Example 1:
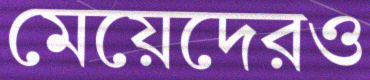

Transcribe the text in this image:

মেয়েদেরও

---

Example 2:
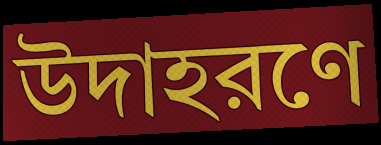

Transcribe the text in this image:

উদাহরণে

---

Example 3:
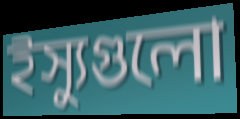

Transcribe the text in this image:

ইস্যুগুলো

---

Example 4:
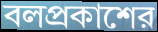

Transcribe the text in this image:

বলপ্রকাশের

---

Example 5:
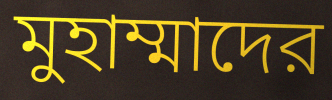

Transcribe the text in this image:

মুহাম্মাদের